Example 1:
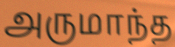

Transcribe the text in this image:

அருமாந்த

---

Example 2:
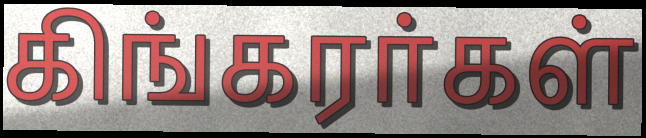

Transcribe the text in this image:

கிங்கரர்கள்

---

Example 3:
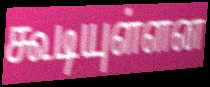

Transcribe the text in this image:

கூடியுள்ளன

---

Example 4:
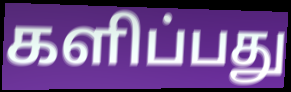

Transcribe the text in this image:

களிப்பது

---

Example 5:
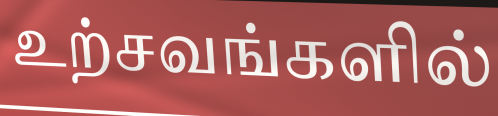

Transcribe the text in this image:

உற்சவங்களில்